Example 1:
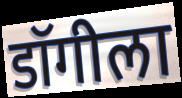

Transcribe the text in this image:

डॉगीला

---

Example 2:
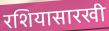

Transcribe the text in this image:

रशियासारखी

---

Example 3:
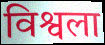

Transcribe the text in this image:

विश्वला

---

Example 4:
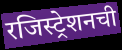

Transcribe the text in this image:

रजिस्ट्रेशनची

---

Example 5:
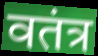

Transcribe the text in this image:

वतंत्र